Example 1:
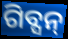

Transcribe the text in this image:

ଗିବ୍ସନ୍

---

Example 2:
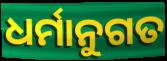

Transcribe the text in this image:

ଧର୍ମାନୁଗତ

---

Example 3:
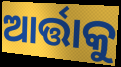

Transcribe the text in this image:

ଆର୍ତ୍ତାକୁ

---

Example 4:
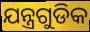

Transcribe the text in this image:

ଯନ୍ତ୍ରଗୁଡିକ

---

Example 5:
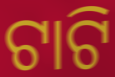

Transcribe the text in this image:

ଟାଟି